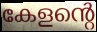
കേളന്റെ